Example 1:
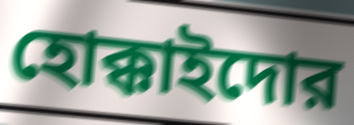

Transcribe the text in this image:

হোক্কাইদোর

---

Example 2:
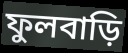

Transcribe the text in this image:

ফুলবাড়ি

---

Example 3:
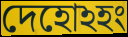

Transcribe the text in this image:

দেহোঽহং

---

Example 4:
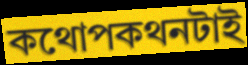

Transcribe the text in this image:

কথোপকথনটাই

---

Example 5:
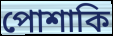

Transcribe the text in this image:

পোশাকি